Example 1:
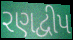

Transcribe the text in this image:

રણદ્વીપ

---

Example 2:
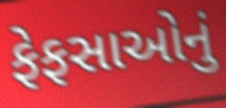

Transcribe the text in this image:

ફેફસાઓનું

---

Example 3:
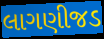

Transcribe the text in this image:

લાગણીજડ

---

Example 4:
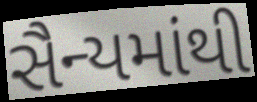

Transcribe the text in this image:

સૈન્યમાંથી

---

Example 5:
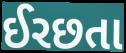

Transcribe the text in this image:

ઈરછતા